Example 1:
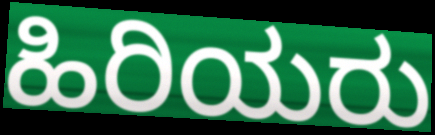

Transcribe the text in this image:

ಹಿರಿಯರು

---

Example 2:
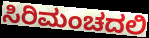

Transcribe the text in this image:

ಸಿರಿಮಂಚದಲಿ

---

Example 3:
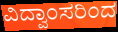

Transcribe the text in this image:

ವಿದ್ವಾಂಸರಿಂದ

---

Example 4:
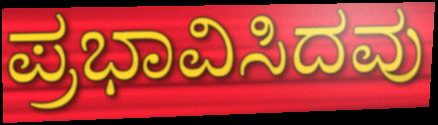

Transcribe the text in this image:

ಪ್ರಭಾವಿಸಿದವು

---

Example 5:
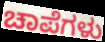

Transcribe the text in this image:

ಚಾಪೆಗಳು